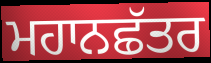
ਮਹਾਨਛੱਤਰ